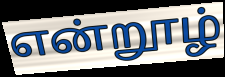
என்றூழ்